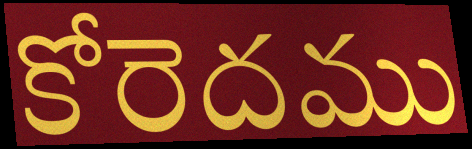
కోరెదము